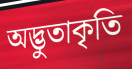
অদ্ভুতাকৃতি